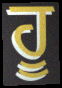
ਹੂ